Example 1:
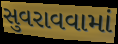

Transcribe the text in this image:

સુવરાવવામાં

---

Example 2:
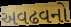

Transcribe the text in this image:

અવઢવનો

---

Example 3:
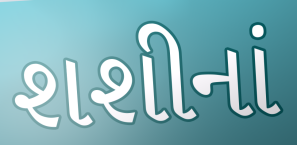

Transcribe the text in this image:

શશીનાં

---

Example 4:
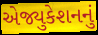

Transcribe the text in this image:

એજ્યુકેશનનું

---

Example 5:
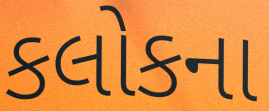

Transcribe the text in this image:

કલોકના